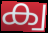
ക്വ